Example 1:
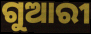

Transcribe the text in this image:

ଗୁଆରୀ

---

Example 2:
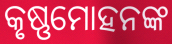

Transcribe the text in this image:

କୃଷ୍ଣମୋହନଙ୍କ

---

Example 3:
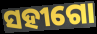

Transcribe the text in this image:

ସହୀଗୋ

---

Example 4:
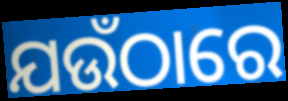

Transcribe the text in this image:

ଯଉଁଠାରେ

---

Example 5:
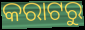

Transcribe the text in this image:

କରାଟରୁ